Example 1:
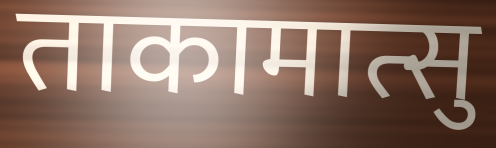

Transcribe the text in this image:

ताकामात्सु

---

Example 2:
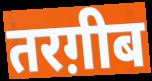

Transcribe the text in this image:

तरग़ीब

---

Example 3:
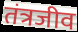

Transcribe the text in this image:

तंत्रजीव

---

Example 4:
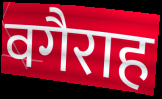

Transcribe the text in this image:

वगैराह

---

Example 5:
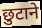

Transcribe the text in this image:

छुटाने